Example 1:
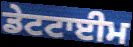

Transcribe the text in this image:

ਡੇਟਟਾਈਮ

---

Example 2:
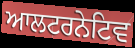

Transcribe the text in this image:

ਆਲਟਰਨੇਟਿਵ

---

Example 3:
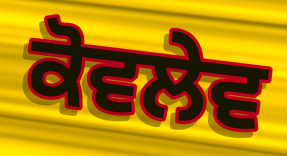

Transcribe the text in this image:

ਕੋਵਲੇਵ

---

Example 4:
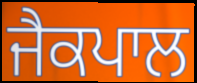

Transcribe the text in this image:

ਜੈਕਪਾਲ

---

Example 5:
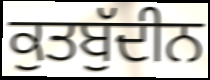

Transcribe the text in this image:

ਕੁਤਬੁੱਦੀਨ